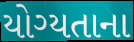
યોગ્યતાના